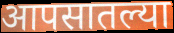
आपसातल्या